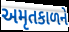
અમૃતકાળને